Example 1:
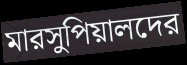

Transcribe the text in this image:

মারসুপিয়ালদের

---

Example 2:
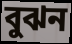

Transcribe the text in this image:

বুঝন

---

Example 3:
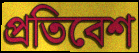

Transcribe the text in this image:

প্রতিবেশ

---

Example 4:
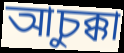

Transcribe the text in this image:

আচুক্কা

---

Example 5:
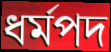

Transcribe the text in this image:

ধর্মপদ